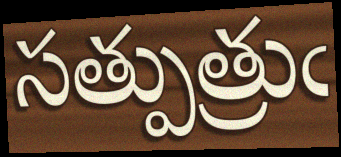
సత్పుత్రుఁ